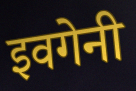
इवगेनी